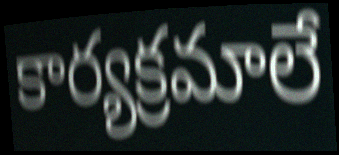
కార్యక్రమాలే